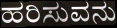
ಹರಿಸುವನು